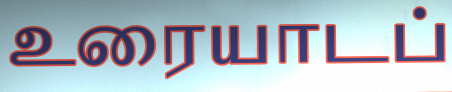
உரையாடப்